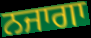
ਨਜਾਗਾ